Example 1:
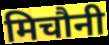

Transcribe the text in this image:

मिचौनी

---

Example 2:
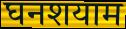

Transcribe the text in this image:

घनशयाम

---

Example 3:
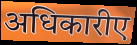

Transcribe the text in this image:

अधिकारीए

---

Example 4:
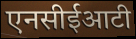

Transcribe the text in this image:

एनसीईआटी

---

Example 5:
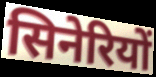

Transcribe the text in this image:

सिनेरियों